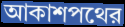
আকাশপথের